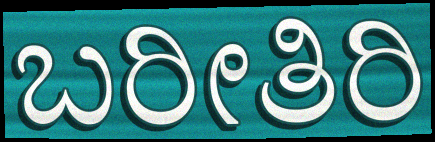
ಬರೀತಿರಿ